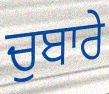
ਚੁਬਾਰੇ